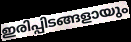
ഇരിപ്പിടങ്ങളായും